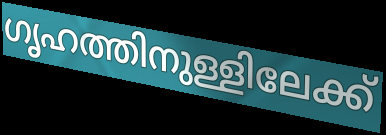
ഗൃഹത്തിനുള്ളിലേക്ക്